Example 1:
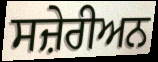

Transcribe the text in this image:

ਸਜ਼ੇਰੀਅਨ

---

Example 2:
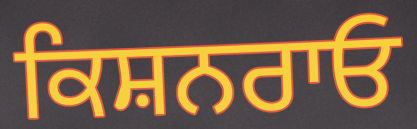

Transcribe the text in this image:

ਕਿਸ਼ਨਰਾਓ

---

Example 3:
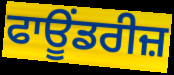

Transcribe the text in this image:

ਫਾਊਂਡਰੀਜ਼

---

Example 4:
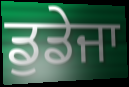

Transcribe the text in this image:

ਡੁਡੇਜਾ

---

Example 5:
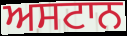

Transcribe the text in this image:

ਅਸਟਾਨ